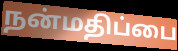
நன்மதிப்பை